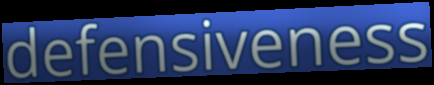
defensiveness